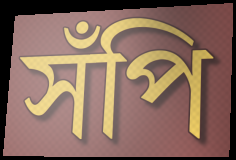
সঁপি